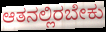
ಆತನಲ್ಲಿರಬೇಕು